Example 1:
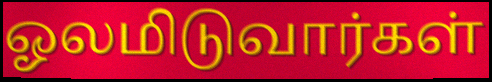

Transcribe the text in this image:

ஓலமிடுவார்கள்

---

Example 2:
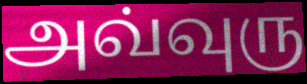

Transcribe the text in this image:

அவ்வுரு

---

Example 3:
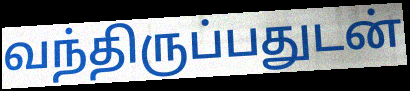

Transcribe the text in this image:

வந்திருப்பதுடன்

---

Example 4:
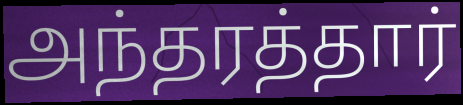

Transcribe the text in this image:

அந்தரத்தார்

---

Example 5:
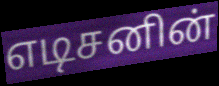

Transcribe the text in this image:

எடிசனின்